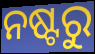
ନଷ୍ଟରୁ